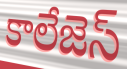
కాలేజెస్